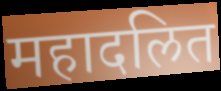
महादलित